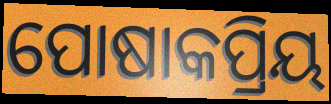
ପୋଷାକପ୍ରିୟ